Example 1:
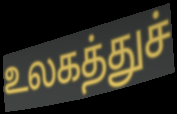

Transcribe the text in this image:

உலகத்துச்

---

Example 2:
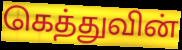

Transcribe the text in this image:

கெத்துவின்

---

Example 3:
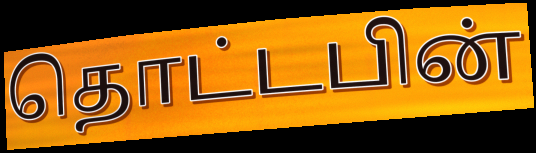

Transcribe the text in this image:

தொட்டபின்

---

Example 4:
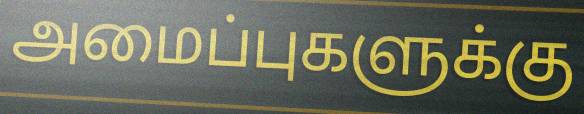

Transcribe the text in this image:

அமைப்புகளுக்கு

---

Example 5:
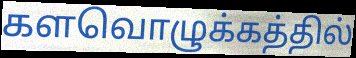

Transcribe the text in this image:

களவொழுக்கத்தில்